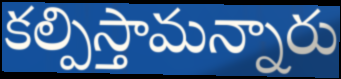
కల్పిస్తామన్నారు